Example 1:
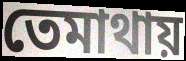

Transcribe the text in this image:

তেমাথায়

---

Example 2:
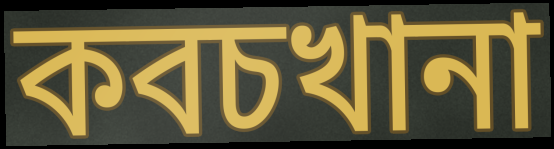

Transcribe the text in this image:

কবচখানা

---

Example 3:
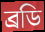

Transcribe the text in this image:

ব্রডি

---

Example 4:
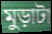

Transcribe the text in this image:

মুড়াটা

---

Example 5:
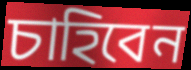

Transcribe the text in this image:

চাহিবেন